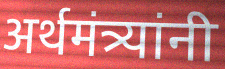
अर्थमंत्र्यांनी